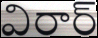
విరార్